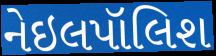
નેઇલપૉલિશ